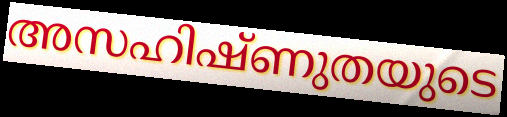
അസഹിഷ്ണുതയുടെ